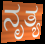
ನೃತ್ಯ